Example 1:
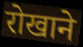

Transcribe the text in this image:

रोखाने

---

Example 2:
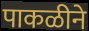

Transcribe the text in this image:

पाकळीने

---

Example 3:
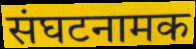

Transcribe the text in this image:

संघटनामक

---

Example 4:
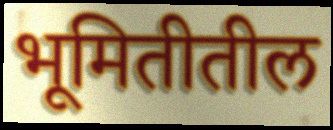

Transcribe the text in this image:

भूमितीतील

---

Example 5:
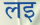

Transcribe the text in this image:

लइ